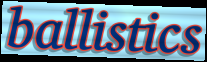
ballistics